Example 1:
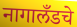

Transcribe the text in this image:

नागालँडचे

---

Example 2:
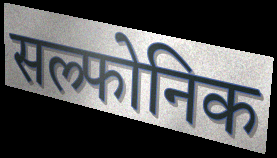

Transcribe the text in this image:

सल्फोनिक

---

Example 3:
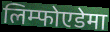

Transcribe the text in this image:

लिम्फोएडेमा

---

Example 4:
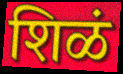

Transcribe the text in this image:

शिळं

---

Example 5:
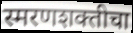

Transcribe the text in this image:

स्मरणशक्तीचा